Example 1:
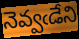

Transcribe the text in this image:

నెవ్వఁడేని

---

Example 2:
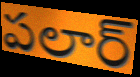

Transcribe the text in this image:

పలార్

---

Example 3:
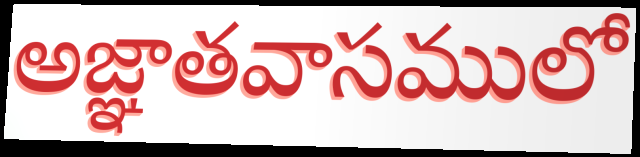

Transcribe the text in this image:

అజ్ఞాతవాసములో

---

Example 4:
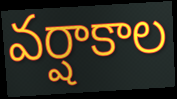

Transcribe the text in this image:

వర్షాకాల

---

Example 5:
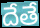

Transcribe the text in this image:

దేతే